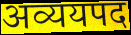
अव्ययपद